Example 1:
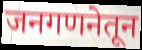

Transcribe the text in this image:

जनगणनेतून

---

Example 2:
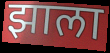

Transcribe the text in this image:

झाला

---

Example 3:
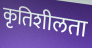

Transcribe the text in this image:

कृतिशीलता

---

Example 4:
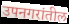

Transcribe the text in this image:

उपनगरांतील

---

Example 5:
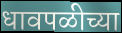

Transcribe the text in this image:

धावपळीच्या